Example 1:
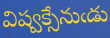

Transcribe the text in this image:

విష్వక్సేనుఁడు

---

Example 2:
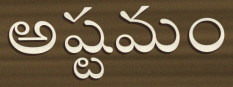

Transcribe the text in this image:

అష్టమం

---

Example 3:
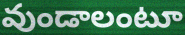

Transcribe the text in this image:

వుండాలంటూ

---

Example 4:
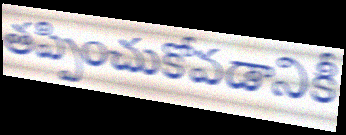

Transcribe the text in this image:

తప్పించుకోవడానికీ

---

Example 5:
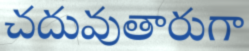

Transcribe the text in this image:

చదువుతారుగా